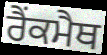
ਰੈਂਕਮੈਥ